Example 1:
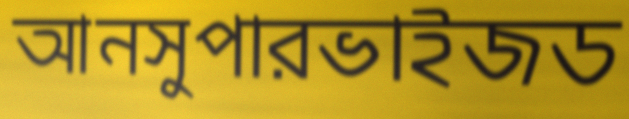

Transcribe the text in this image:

আনসুপারভাইজড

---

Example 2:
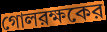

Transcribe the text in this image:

গোলরক্ষকের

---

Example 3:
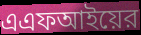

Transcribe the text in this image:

এএফআইয়ের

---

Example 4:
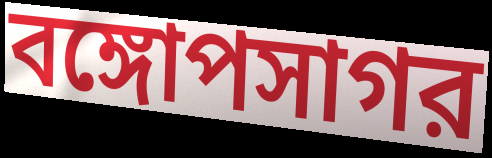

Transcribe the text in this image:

বঙ্গোপসাগর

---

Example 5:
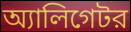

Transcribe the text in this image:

অ্যালিগেটর